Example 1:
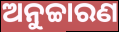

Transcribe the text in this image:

ଅନୁଚ୍ଚାରଣ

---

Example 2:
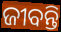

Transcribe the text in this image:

ଜୀବନ୍ତି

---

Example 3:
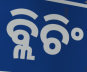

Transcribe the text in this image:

ବ୍ଲିଚିଂ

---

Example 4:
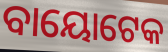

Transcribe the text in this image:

ବାୟୋଟେକ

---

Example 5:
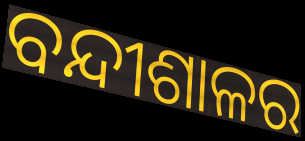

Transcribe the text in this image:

ବନ୍ଦୀଶାଳର